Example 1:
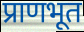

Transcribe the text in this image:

प्राणभूत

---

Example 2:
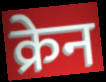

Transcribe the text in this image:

क्रेन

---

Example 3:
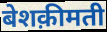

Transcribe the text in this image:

बेशक़ीमती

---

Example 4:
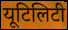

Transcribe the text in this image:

यूटिलिटी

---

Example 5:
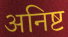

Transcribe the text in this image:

अनिष्ट